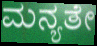
ಮನ್ಯತೇ